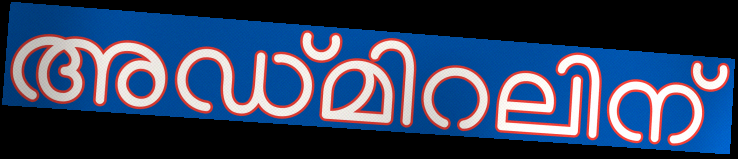
അഡ്മിറലിന്